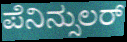
ಪೆನಿನ್ಸುಲರ್